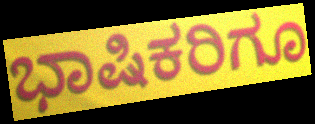
ಭಾಷಿಕರಿಗೂ